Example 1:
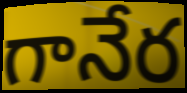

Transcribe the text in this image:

గానేర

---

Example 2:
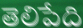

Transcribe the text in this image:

తెలిపేది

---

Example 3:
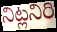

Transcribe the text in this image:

నిట్లనిరి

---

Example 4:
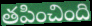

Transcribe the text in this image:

తపించింది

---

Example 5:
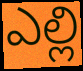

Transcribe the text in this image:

ఎల్లి